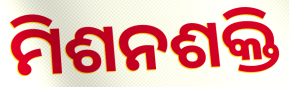
ମିଶନଶକ୍ତି